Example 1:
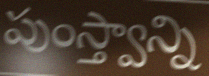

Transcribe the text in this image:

పుంస్త్వాన్ని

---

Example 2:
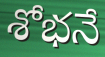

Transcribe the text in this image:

శోభనే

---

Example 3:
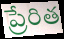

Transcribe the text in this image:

ప్రేరిత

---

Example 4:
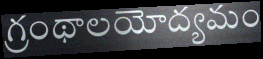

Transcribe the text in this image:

గ్రంథాలయోద్యమం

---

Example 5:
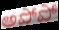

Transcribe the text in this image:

అపోపో